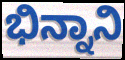
ಭಿನ್ನಾನಿ